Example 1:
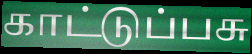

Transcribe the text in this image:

காட்டுப்பசு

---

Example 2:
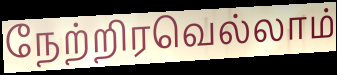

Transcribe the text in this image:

நேற்றிரவெல்லாம்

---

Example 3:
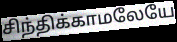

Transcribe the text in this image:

சிந்திக்காமலேயே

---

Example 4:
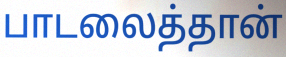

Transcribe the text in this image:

பாடலைத்தான்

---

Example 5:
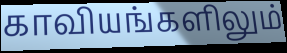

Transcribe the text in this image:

காவியங்களிலும்